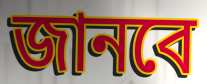
জানবে